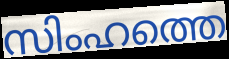
സിംഹത്തെ